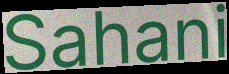
Sahani